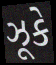
ઝૂકે